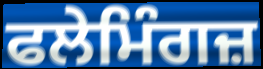
ਫਲੇਮਿੰਗਜ਼